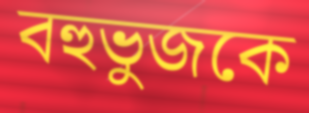
বহুভুজকে